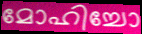
മോഹിച്ചോ